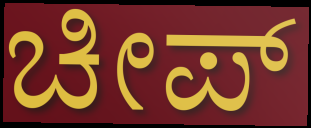
ಚೀಪ್